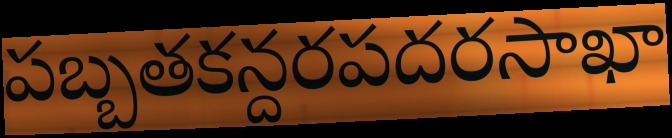
పబ్బతకన్దరపదరసాఖా